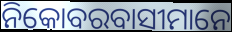
ନିକୋବରବାସୀମାନେ